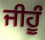
ਜੀਹੂੰ